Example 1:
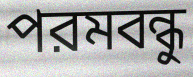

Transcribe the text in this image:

পরমবন্ধু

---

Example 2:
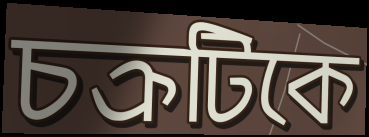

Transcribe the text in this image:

চক্রটিকে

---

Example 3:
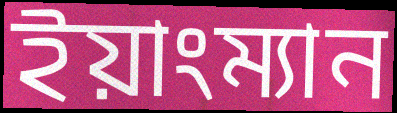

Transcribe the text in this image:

ইয়াংম্যান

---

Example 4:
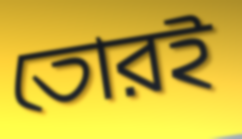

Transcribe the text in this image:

তোরই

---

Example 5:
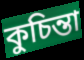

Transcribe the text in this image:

কুচিন্তা